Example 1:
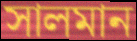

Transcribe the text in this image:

সালমান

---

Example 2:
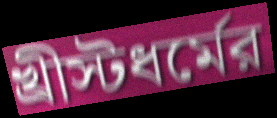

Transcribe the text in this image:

খ্রীস্টধর্মের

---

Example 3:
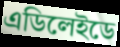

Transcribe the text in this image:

এডিলেইডে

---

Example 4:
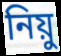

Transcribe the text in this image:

নিয়ু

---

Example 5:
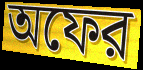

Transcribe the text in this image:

অফের